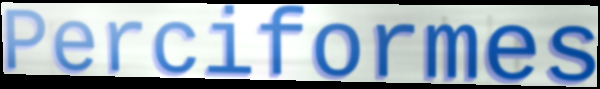
Perciformes